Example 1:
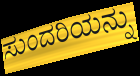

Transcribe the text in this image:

ಸುಂದರಿಯನ್ನು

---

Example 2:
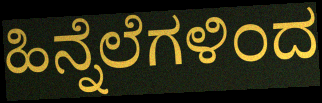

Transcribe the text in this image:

ಹಿನ್ನೆಲೆಗಳಿಂದ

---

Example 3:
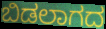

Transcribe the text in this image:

ಬಿಡಲಾಗದ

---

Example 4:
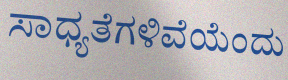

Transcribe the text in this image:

ಸಾಧ್ಯತೆಗಳಿವೆಯೆಂದು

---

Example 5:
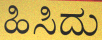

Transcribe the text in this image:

ಹಿಸಿದು